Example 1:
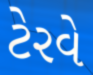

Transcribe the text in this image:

ટેરવે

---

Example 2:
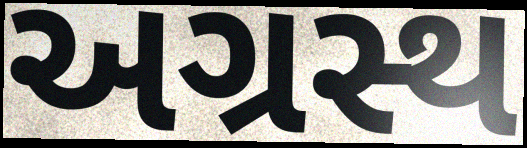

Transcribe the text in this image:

અગ્રસ્થ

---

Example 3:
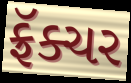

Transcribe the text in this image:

ફ્રૅક્ચર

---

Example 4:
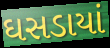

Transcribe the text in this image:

ઘસડાયાં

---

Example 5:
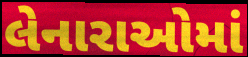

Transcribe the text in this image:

લેનારાઓમાં